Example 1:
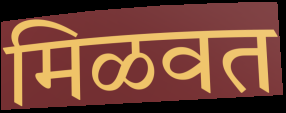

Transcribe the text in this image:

मिळवत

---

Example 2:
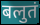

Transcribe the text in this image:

बलुतं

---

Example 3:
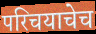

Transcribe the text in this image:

परिचयाचेच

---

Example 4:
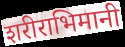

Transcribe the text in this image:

शरीराभिमानी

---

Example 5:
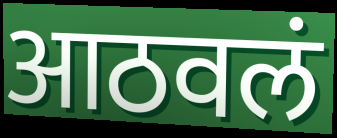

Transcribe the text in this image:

आठवलं